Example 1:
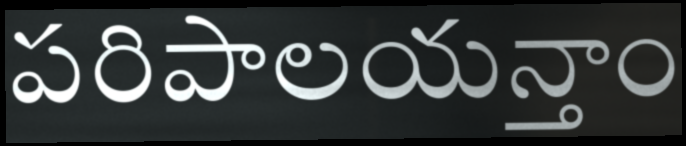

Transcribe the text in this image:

పరిపాలయన్తాం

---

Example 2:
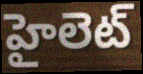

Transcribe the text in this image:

హైలెట్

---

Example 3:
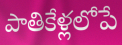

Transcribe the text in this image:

పాతికేళ్లలోపే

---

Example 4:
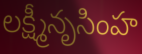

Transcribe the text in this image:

లక్ష్మీనృసింహ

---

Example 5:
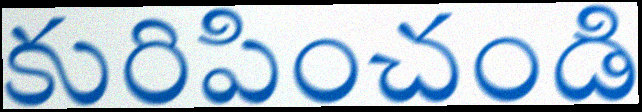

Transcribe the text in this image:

కురిపించండి